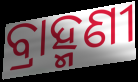
ବ୍ରାହ୍ମଣୀ